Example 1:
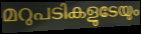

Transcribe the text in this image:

മറുപടികളുടേയും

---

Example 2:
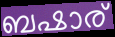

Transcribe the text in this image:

ബഷാര്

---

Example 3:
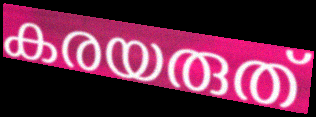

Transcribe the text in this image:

കരയരുത്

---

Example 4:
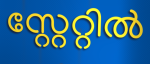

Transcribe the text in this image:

സ്റ്റേറ്റിൽ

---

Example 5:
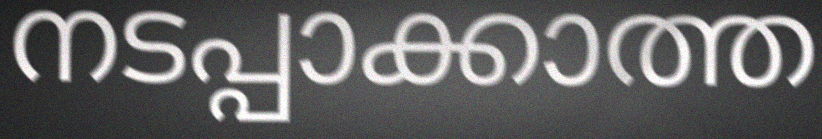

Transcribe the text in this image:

നടപ്പാക്കാത്ത